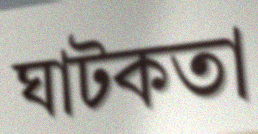
ঘাটকতা